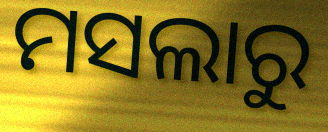
ମସଲାରୁ